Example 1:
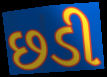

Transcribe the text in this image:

છડી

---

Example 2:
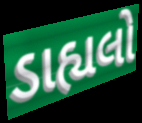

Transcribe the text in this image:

ડાહ્યલો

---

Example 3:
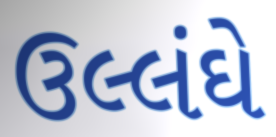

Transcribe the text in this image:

ઉલ્લંઘે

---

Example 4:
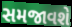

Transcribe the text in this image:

સમજાવશે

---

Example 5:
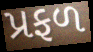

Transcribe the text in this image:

પ્રફળ